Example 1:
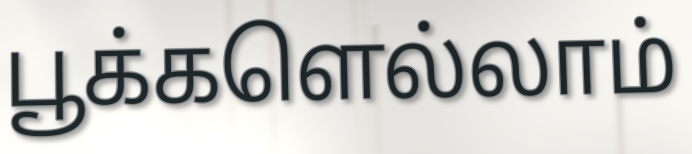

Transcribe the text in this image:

பூக்களெல்லாம்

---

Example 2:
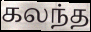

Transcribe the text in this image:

கலந்த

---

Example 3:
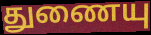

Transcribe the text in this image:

துணையு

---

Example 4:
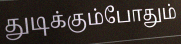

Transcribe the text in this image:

துடிக்கும்போதும்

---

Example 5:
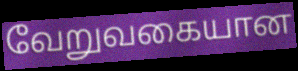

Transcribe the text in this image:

வேறுவகையான